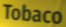
Tobaco